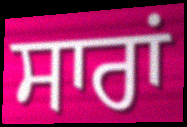
ਸਾਰਾਂ